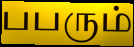
பபரும்